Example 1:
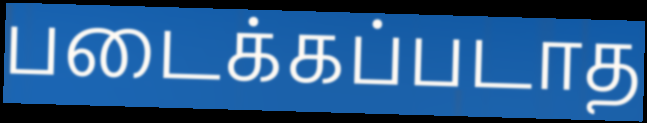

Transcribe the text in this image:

படைக்கப்படாத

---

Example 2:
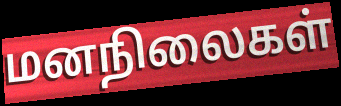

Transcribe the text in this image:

மனநிலைகள்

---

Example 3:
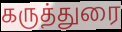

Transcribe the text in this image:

கருத்துரை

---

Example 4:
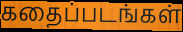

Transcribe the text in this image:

கதைப்படங்கள்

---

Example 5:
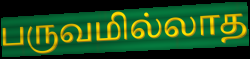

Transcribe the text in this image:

பருவமில்லாத